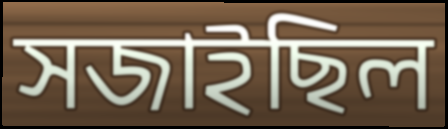
সজাইছিল